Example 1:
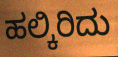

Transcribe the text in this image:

ಹಲ್ಕಿರಿದು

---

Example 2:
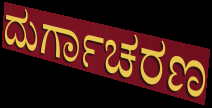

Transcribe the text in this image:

ದುರ್ಗಾಚರಣ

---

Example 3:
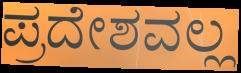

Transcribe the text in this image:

ಪ್ರದೇಶವಲ್ಲ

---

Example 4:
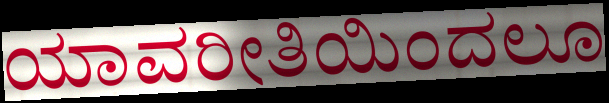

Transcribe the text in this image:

ಯಾವರೀತಿಯಿಂದಲೂ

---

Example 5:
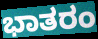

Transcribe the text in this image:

ಭಾತರಂ